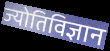
ज्योतिविज्ञान